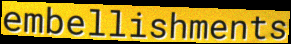
embellishments